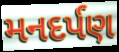
મનદર્પણ